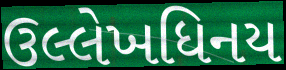
ઉલ્લેખધિનય